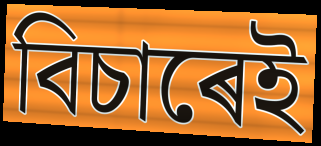
বিচাৰেই